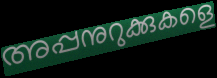
അപ്പനുറുക്കുകളെ